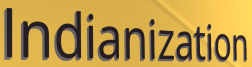
Indianization